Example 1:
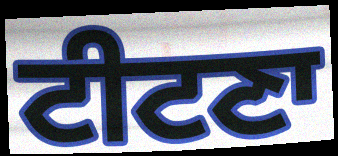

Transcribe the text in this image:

ਟੀਟਣਾ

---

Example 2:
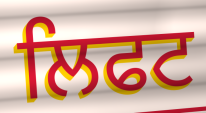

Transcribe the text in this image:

ਲਿਫਟ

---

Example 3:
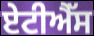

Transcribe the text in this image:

ਏਟੀਐੱਸ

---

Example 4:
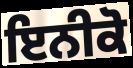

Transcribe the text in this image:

ਇਨੀਕੋ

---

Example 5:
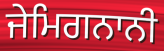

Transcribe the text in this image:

ਜੇਮਿਗਨਾਨੀ